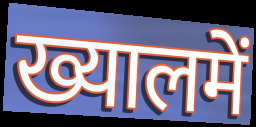
ख्यालमें